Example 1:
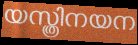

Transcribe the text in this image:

യസ്ത്രിനയന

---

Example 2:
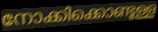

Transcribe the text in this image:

നോക്കിക്കൊണ്ടുള്ള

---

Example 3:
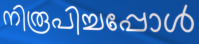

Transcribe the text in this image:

നിരൂപിച്ചപ്പോൾ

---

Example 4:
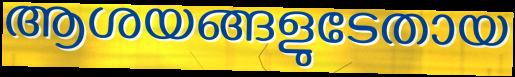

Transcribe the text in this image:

ആശയങ്ങളുടേതായ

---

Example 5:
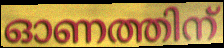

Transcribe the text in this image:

ഓണത്തിന്